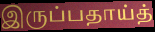
இருப்பதாய்த்